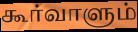
கூர்வாளும்